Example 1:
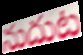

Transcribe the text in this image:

నుదుట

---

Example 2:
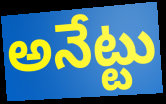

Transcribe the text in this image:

అనేట్టు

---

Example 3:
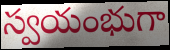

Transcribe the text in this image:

స్వయంభుగా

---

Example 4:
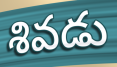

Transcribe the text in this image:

శివడు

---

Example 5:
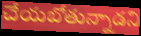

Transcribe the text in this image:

చేయబోతున్నాడని